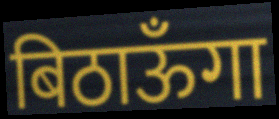
बिठाऊँगा